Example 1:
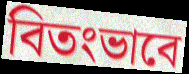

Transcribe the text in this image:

বিতংভাবে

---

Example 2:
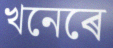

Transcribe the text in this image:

খনেৰে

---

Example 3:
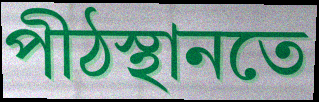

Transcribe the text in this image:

পীঠস্থানতে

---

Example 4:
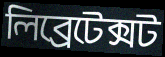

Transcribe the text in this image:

লিব্ৰেটেক্সট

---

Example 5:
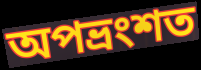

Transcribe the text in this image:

অপভ্ৰংশত